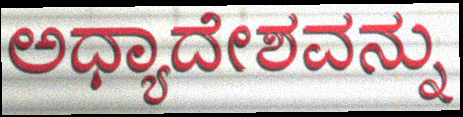
ಅಧ್ಯಾದೇಶವನ್ನು